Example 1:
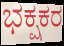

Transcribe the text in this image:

ಭಕ್ಷಕರ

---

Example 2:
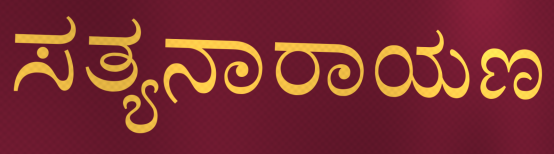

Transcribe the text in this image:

ಸತ್ಯನಾರಾಯಣ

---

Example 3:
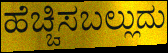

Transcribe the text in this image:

ಹೆಚ್ಚಿಸಬಲ್ಲುದು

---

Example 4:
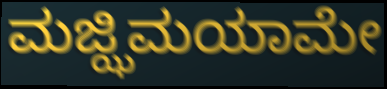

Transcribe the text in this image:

ಮಜ್ಝಿಮಯಾಮೇ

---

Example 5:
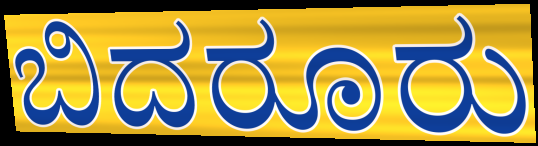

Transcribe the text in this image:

ಬಿದರೂರು